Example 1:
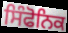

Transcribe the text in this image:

ਸਿੰਫੋਨਿਕ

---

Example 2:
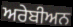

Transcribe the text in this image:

ਅਰੇਬੀਅਨ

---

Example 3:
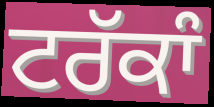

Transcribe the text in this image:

ਟਰੱਕਾੰ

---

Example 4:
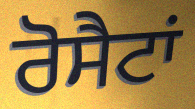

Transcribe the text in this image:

ਰੋਸੈਟਾਂ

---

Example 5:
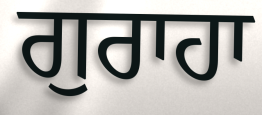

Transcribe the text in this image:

ਗੁਰਾਹਾ